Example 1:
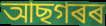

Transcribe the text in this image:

আছগৰৰ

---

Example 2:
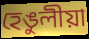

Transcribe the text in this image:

হেঙুলীয়া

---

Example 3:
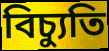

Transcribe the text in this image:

বিচ্যুতি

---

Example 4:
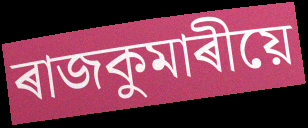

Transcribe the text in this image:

ৰাজকুমাৰীয়ে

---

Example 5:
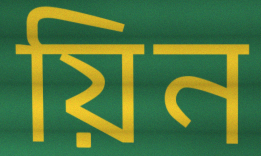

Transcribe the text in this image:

য়িন